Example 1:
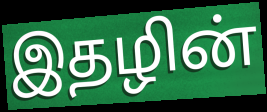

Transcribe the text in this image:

இதழின்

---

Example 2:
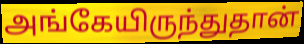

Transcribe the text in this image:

அங்கேயிருந்துதான்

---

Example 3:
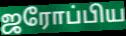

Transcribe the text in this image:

ஜரோப்பிய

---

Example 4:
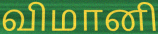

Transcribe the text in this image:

விமானி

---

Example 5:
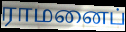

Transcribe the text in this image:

ராமனைப்